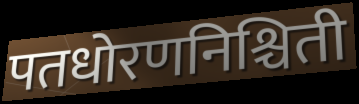
पतधोरणनिश्चिती